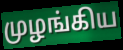
முழங்கிய